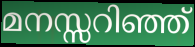
മനസ്സറിഞ്ഞ്